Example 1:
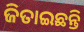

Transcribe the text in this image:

ଜିତାଇଛନ୍ତି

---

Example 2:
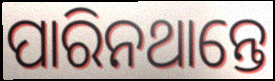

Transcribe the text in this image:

ପାରିନଥାନ୍ତେ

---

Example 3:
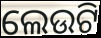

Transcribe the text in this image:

ଲେଉଟି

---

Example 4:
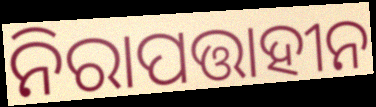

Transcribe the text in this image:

ନିରାପତ୍ତାହୀନ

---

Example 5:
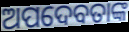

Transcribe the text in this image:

ଅପଦେବତାଙ୍କ